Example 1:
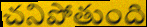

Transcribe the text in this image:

చనిపోతుంది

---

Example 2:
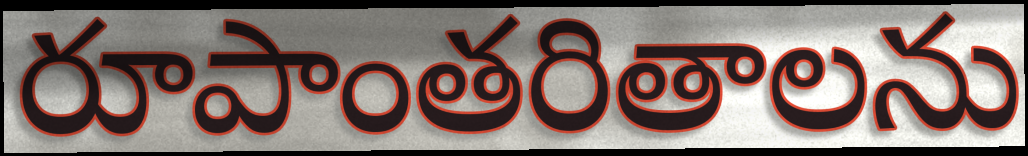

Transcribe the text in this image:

రూపాంతరితాలను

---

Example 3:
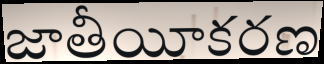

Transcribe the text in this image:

జాతీయీకరణ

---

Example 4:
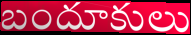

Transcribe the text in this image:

బందూకులు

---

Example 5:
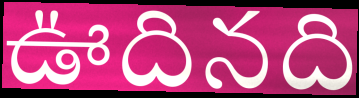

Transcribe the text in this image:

ఊదినది